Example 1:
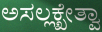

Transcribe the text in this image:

ಅಸಲ್ಲಕ್ಖೇತ್ವಾ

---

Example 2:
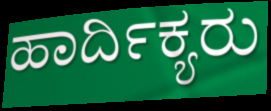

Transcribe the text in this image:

ಹಾರ್ದಿಕ್ಯರು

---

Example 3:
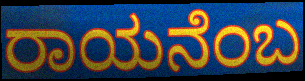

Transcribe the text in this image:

ರಾಯನೆಂಬ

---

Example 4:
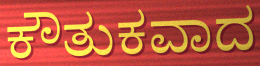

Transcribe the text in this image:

ಕೌತುಕವಾದ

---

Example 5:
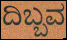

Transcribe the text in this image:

ದಿಬ್ಬವ